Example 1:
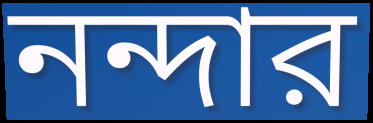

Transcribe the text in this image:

নন্দার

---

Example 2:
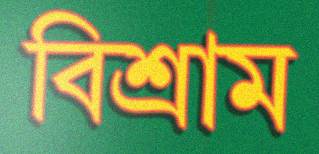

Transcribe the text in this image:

বিশ্রাম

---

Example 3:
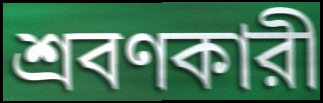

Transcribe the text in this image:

শ্রবণকারী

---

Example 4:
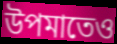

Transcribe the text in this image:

উপমাতেও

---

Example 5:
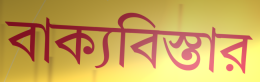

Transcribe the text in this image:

বাক্যবিস্তার